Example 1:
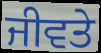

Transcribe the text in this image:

ਜੀਵਤੇ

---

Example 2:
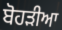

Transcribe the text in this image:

ਬੋਹੜੀਆ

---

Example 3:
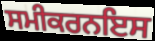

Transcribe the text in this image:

ਸਮੀਕਰਨਇਸ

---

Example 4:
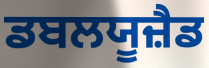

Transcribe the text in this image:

ਡਬਲਯੂਜ਼ੈਡ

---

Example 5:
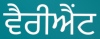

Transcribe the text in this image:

ਵੈਰੀਐਂਟ